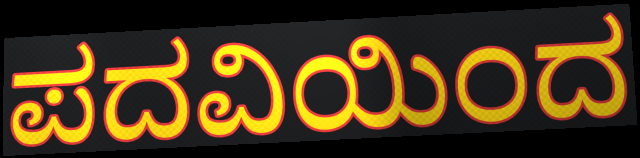
ಪದವಿಯಿಂದ